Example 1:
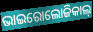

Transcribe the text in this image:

ଭାଇରୋଲୋଜିକାଲ୍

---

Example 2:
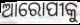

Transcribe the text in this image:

ଆରୋପୀକୁ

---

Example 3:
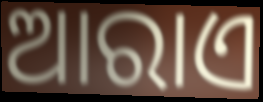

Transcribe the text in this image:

ଆରାଏ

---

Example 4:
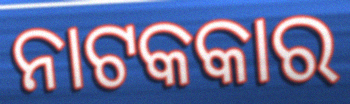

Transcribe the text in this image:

ନାଟକକାର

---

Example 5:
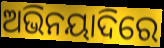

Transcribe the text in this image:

ଅଭିନୟାଦିରେ